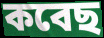
কবেছ